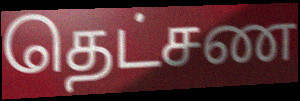
தெட்சண